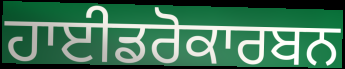
ਹਾਈਡਰੋਕਾਰਬਨ